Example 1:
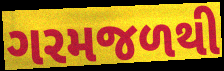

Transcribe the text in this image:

ગરમજળથી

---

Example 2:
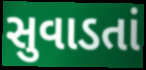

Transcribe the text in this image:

સુવાડતાં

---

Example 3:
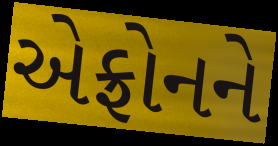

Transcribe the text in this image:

એફ્રોનને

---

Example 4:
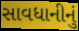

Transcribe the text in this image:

સાવધાનીનું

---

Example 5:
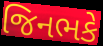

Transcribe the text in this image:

જિનભકે